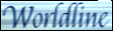
Worldline